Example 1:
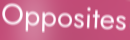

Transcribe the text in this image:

Opposites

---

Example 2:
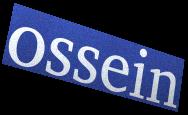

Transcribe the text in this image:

ossein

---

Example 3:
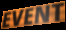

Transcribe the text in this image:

EVENT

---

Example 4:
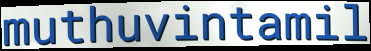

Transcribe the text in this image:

muthuvintamil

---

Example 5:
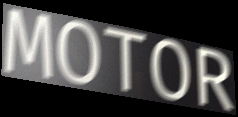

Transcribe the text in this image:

MOTOR